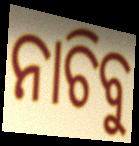
ନାଚିବୁ